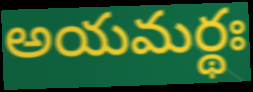
అయమర్థః